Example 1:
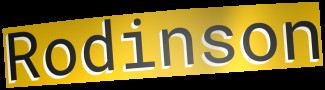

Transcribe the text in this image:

Rodinson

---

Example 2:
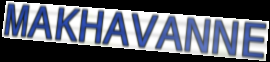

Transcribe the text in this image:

MAKHAVANNE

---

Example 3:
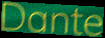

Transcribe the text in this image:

Dante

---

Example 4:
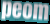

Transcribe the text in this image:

peom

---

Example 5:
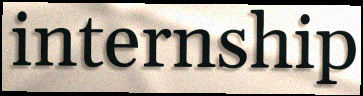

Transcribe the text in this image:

internship